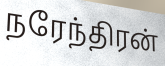
நரேந்திரன்